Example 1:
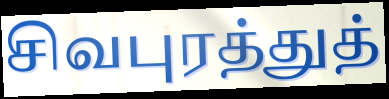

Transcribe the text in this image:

சிவபுரத்துத்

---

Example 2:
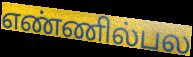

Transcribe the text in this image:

எண்ணில்பல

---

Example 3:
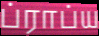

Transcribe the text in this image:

ப்ராப்ய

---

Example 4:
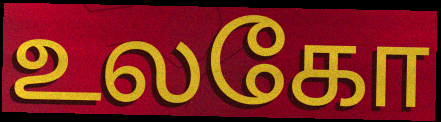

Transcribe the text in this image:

உலகோ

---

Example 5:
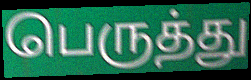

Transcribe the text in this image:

பெருத்து